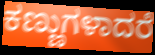
ಕಣ್ಣುಗಳಾದರೆ